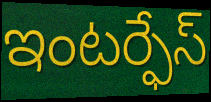
ఇంటర్ఫేస్